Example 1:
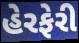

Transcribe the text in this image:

હેરફેરી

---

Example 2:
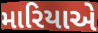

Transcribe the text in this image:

મારિયાએ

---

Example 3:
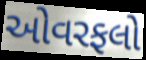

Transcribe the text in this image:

ઓવરફલો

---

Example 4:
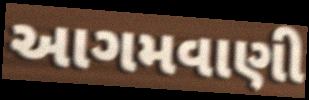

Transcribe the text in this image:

આગમવાણી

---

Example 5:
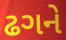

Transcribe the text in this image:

ઢગને